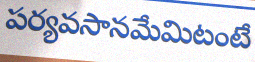
పర్యవసానమేమిటంటే